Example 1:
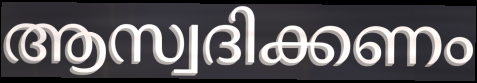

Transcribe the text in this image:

ആസ്വദിക്കണം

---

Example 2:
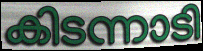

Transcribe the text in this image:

കിടന്നാടി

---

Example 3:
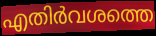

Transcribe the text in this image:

എതിർവശത്തെ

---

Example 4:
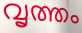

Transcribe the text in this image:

വൃത്തം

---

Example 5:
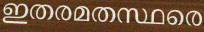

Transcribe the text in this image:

ഇതരമതസ്ഥരെ